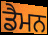
ਡੈਮਨ